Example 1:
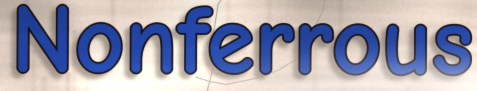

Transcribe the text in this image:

Nonferrous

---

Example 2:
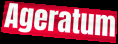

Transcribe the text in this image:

Ageratum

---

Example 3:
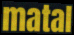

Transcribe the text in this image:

matal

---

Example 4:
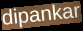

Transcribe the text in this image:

dipankar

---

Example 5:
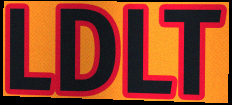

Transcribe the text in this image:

LDLT